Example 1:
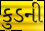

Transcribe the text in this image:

કુડની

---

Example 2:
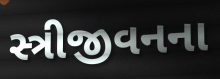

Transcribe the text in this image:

સ્ત્રીજીવનના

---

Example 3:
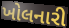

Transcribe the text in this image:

ખોલનારી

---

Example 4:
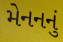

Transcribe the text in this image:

મેનનનું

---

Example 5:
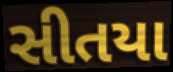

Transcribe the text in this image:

સીતયા